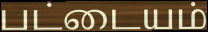
பட்டையம்